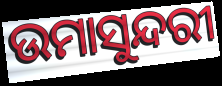
ଉମାସୁନ୍ଦରୀ